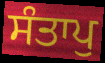
ਸੰਤਾਪੁ